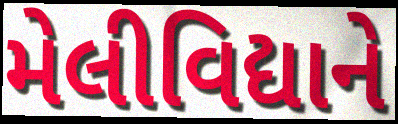
મેલીવિદ્યાને